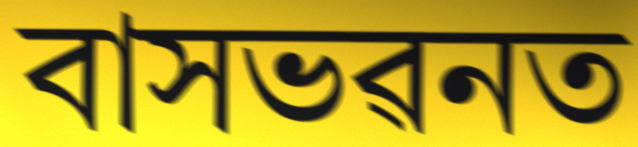
বাসভৱনত